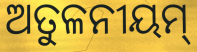
ଅତୁଳନୀୟମ୍